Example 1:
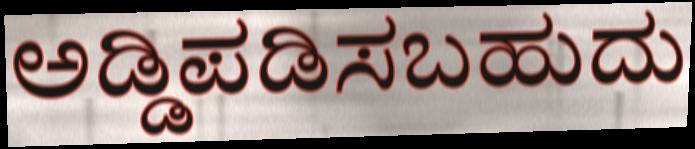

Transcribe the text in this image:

ಅಡ್ಡಿಪಡಿಸಬಹುದು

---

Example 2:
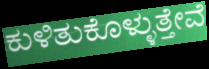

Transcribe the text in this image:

ಕುಳಿತುಕೊಳ್ಳುತ್ತೇವೆ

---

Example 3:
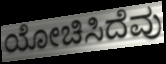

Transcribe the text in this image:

ಯೋಚಿಸಿದೆವು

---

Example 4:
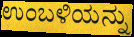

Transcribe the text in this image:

ಉಂಬಳಿಯನ್ನು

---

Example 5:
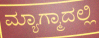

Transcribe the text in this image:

ಮ್ಯಾಗ್ಮಾದಲ್ಲಿ